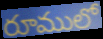
రూములో